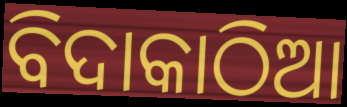
ବିଦାକାଠିଆ